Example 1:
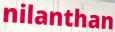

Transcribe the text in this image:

nilanthan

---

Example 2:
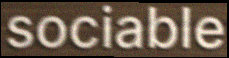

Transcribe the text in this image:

sociable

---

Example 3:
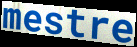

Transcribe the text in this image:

mestre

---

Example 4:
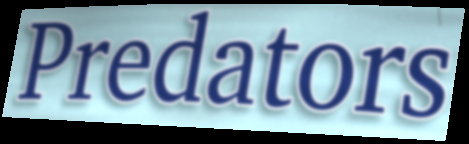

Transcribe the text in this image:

Predators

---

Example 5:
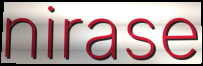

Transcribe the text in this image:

nirase